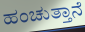
ಹಂಚುತ್ತಾನೆ